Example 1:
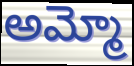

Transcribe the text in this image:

అమ్మో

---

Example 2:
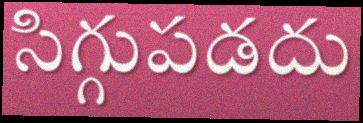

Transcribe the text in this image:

సిగ్గుపడదు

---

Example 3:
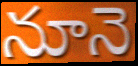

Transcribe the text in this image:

నూనె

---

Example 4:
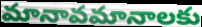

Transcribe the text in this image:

మానావమానాలకు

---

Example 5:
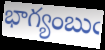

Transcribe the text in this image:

భాగ్యంబుఁ